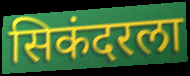
सिकंदरला